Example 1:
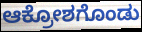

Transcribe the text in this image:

ಆಕ್ರೋಶಗೊಂಡು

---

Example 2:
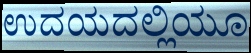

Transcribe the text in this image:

ಉದಯದಲ್ಲಿಯೂ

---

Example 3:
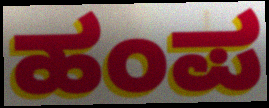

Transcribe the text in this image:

ಹಂಪ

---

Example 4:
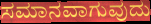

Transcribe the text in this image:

ಸಮಾನವಾಗುವುದು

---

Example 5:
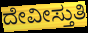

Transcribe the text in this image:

ದೇವೀಸ್ತುತಿ